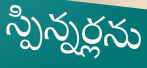
స్పిన్నర్లను